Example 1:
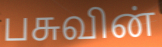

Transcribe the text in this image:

பசுவின்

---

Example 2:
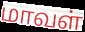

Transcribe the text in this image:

மாவள்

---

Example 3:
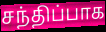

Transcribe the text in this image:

சந்திப்பாக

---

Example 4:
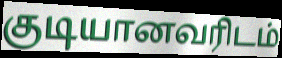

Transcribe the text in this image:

குடியானவரிடம்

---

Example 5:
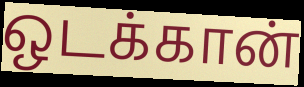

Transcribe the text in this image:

ஒடக்கான்